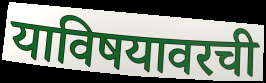
याविषयावरची